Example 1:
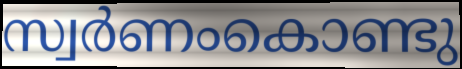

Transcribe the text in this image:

സ്വർണംകൊണ്ടു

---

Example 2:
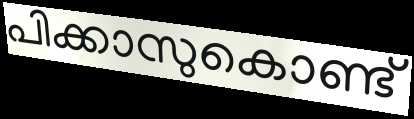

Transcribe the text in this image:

പിക്കാസുകൊണ്ട്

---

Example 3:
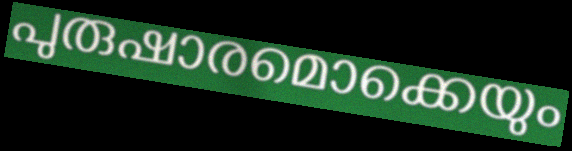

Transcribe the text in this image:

പുരുഷാരമൊക്കെയും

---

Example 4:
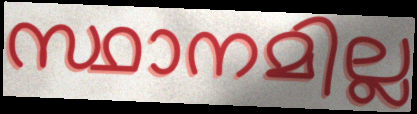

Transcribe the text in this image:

സ്ഥാനമില്ല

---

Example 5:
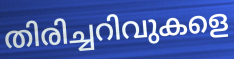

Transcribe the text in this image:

തിരിച്ചറിവുകളെ